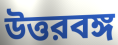
উত্তরবঙ্গ